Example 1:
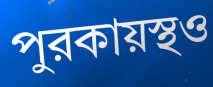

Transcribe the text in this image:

পুরকায়স্থও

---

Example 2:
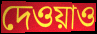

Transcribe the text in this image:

দেওয়াও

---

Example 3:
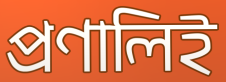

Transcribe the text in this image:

প্রণালিই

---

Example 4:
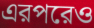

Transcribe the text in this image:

এরপরেও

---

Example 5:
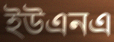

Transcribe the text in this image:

ইউএনএ